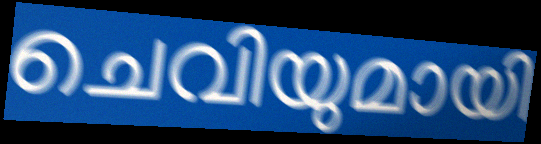
ചെവിയുമായി